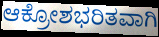
ಆಕ್ರೋಶಭರಿತವಾಗಿ